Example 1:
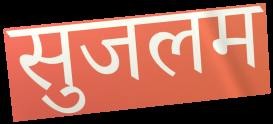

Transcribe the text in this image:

सुजलम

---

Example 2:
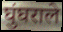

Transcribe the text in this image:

घुंघराले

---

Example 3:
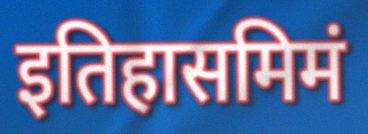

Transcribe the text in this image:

इतिहासमिमं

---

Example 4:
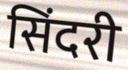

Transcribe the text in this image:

सिंदरी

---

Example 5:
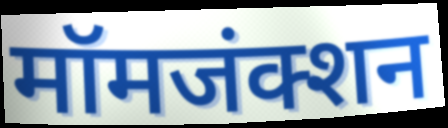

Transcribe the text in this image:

मॉमजंक्शन